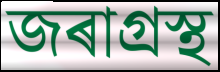
জৰাগ্ৰস্থ